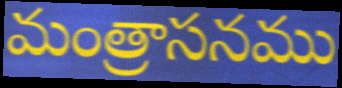
మంత్రాసనము